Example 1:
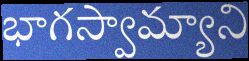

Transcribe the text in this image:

భాగస్వామ్యాని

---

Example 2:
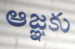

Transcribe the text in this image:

ఆజ్ఞకు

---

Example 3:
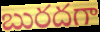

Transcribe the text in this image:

బురదగా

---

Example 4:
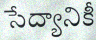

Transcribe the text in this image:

సేద్యానికీ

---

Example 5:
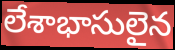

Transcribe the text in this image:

లేశాభాసులైన